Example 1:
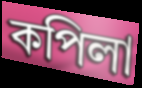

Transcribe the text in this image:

কপিলা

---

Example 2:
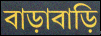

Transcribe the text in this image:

বাড়াবাড়ি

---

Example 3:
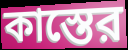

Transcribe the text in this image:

কাস্তের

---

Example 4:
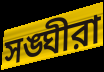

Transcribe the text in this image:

সঙ্ঘীরা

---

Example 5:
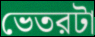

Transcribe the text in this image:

ভেতরটা